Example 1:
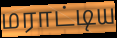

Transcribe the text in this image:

மராட்டிய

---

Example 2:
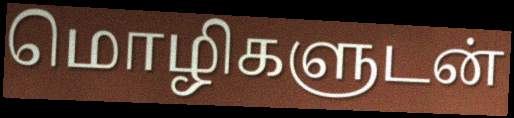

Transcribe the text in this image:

மொழிகளுடன்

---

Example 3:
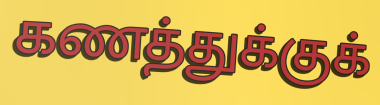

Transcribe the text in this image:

கணத்துக்குக்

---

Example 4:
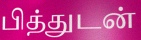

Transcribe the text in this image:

பித்துடன்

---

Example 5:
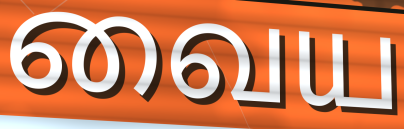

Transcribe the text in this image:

வைய